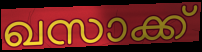
ഖസാക്ക്